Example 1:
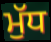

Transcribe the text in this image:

ਮੁੱਧ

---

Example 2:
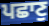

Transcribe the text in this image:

ਪਛਾਣੁ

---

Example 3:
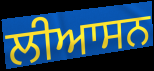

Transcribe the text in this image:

ਲੀਆਸਨ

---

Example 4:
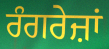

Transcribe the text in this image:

ਰੰਗਰੇਜ਼ਾਂ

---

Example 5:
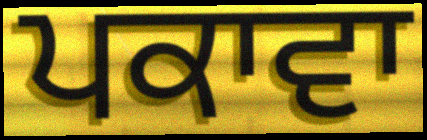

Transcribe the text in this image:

ਪਕਾਵਾ